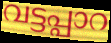
വട്ടപ്പാറ